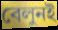
বেলুনই